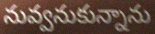
నువ్వనుకున్నాను